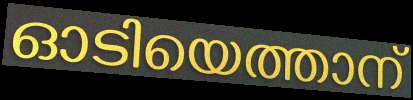
ഓടിയെത്താന്